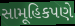
સામૂહિકપણે